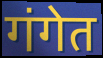
गंगेत